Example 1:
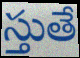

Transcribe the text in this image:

స్తుతే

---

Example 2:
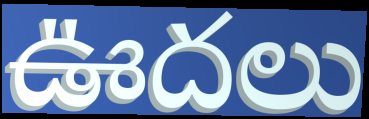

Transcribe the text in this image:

ఊదలు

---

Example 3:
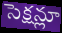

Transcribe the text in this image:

సెక్షన్లూ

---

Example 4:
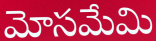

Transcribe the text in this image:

మోసమేమి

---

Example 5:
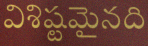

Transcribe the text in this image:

విశిష్టమైనది